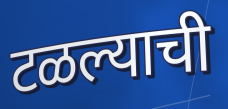
टळल्याची